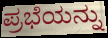
ಪ್ರಭೆಯನ್ನು